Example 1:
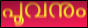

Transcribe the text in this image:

പൂവനും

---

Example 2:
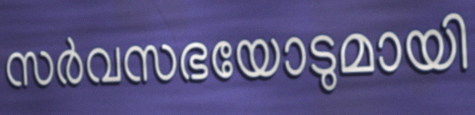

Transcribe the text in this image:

സർവസഭയോടുമായി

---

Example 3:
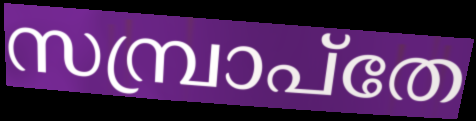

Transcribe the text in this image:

സമ്പ്രാപ്തേ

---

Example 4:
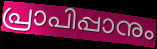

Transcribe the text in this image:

പ്രാപിപ്പാനും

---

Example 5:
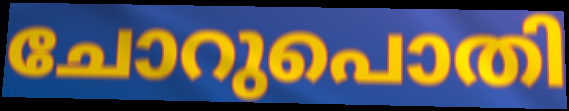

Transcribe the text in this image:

ചോറുപൊതി